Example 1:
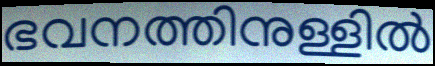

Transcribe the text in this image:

ഭവനത്തിനുള്ളിൽ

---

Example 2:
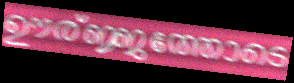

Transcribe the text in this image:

ഊര്ജ്ജത്തോടെ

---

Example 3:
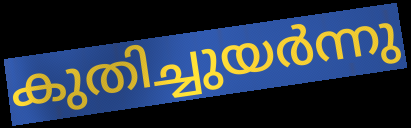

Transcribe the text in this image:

കുതിച്ചുയർന്നു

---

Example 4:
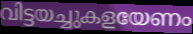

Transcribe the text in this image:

വിട്ടയച്ചുകളയേണം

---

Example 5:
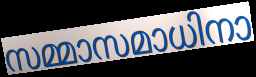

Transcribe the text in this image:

സമ്മാസമാധിനാ